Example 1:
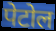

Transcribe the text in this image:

पेटोल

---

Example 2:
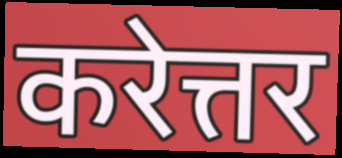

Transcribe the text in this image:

करेत्तर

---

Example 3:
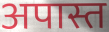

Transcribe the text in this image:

अपास्त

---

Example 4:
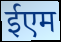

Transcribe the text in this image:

ईएम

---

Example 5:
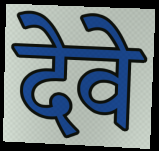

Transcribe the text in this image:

देवे